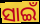
ସାଇଁ